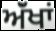
ਅੱਂਖਾਂ